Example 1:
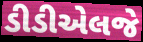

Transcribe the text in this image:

ડીડીએલજે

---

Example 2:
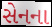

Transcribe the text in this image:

સેનના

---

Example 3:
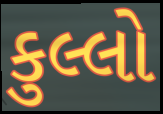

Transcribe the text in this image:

કુલ્લો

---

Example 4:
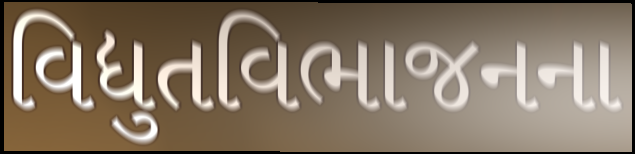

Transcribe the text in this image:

વિદ્યુતવિભાજનના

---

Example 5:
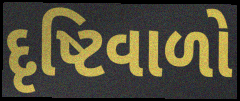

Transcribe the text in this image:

દૃષ્ટિવાળો